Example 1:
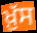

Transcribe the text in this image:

ਖ਼ੁੱਸ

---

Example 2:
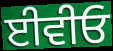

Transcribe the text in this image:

ਈਵੀਓ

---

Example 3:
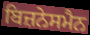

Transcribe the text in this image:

ਬਿਜ਼ਨੇਸਮੈਨ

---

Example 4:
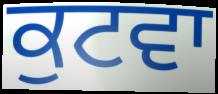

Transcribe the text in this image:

ਕੁਟਵਾ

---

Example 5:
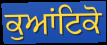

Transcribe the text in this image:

ਕੁਆਂਟਿਕੋ